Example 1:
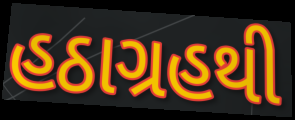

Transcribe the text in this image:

હઠાગ્રહથી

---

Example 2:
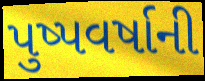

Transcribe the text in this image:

પુષ્પવર્ષાની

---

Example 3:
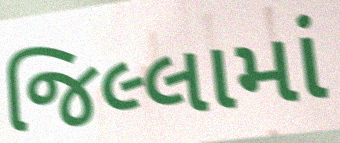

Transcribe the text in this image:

જિલ્લામાં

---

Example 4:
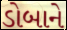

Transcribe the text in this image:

ડોબાને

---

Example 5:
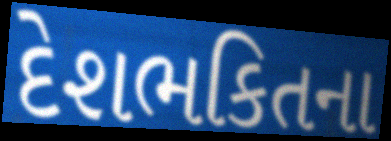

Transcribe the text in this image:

દેશભકિતના